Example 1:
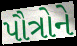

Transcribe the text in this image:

પૌત્રોને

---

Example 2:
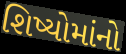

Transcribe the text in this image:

શિષ્યોમાંનો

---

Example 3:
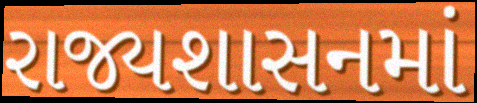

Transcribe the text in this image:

રાજ્યશાસનમાં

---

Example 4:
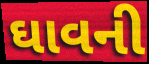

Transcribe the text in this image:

ઘાવની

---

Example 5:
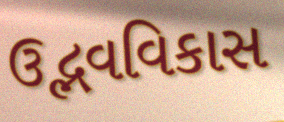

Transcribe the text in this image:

ઉદ્ભવવિકાસ